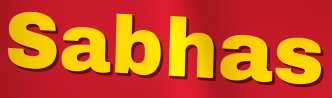
Sabhas